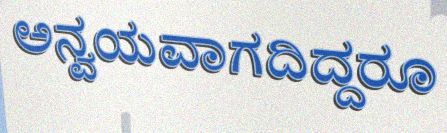
ಅನ್ವಯವಾಗದಿದ್ದರೂ